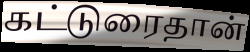
கட்டுரைதான்